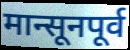
मान्सूनपूर्व